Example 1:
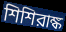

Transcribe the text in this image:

শিশিরাঙ্ক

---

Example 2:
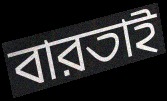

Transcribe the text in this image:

বারতাই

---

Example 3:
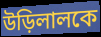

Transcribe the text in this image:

উড়িলালকে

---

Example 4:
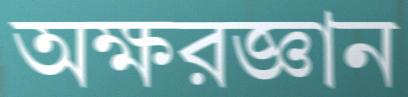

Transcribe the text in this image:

অক্ষরজ্ঞান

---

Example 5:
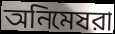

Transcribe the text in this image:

অনিমেষরা